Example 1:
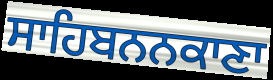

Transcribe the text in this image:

ਸਾਹਿਬਨਨਕਾਣਾ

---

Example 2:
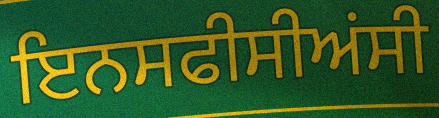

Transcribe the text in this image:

ਇਨਸਫੀਸੀਅਂਸੀ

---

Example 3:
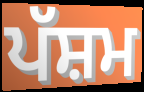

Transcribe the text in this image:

ਪੱਸ਼ਮ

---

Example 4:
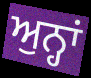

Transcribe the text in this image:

ਅੁਨ੍ਹਾਂ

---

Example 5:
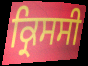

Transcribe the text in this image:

ਕ੍ਰਿਸਸੀ